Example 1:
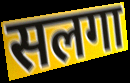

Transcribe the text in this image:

सलगा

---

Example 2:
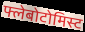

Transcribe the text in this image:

फ्लेबोटोमिस्ट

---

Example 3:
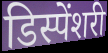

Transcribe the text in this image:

डिस्पेंशरी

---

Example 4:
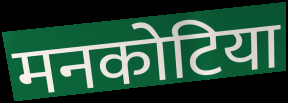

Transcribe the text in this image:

मनकोटिया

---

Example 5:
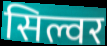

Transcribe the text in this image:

सिल्वर